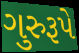
ગુરુરૂપે